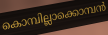
കൊമ്പില്ലാക്കൊമ്പൻ